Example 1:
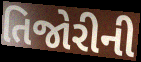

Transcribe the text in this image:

તિજોરીની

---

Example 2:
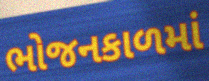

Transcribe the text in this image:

ભોજનકાળમાં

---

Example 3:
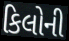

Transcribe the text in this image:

કિલોની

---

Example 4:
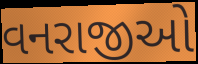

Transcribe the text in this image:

વનરાજીઓ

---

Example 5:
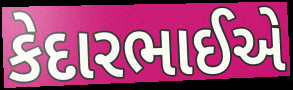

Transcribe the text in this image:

કેદારભાઈએ